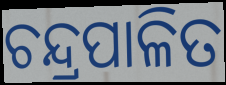
ଚନ୍ଦ୍ରପାଳିତ